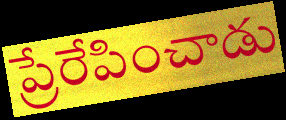
ప్రేరేపించాడు